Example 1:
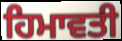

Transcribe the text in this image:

ਹਿਮਾਵਤੀ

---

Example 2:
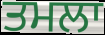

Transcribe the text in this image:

ਤਮਲਾ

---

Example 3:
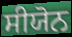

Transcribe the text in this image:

ਸੀਯੋਨ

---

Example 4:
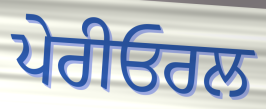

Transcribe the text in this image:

ਪੇਰੀਓਰਲ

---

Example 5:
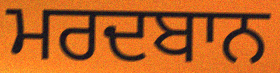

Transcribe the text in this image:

ਮਰਦਬਾਨ